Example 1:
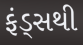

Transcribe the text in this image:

ફંડ્સથી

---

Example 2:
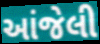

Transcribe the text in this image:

આંજેલી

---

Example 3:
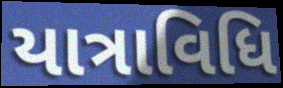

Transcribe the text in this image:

યાત્રાવિધિ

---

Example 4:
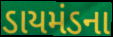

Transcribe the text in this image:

ડાયમંડના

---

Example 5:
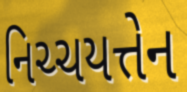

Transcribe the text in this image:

નિચ્ચયત્તેન